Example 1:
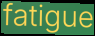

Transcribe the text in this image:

fatigue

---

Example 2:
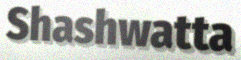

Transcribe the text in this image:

Shashwatta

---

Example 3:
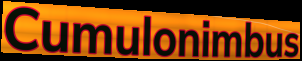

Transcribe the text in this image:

Cumulonimbus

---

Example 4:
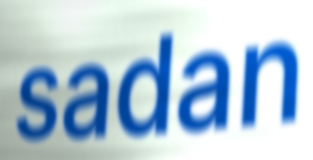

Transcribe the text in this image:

sadan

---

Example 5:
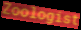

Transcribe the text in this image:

Zoologist